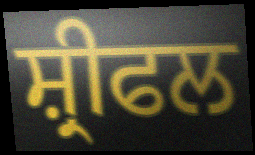
ਸ਼੍ਰੀਫਲ